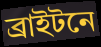
ব্রাইটনে